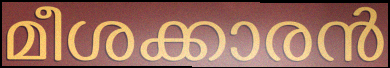
മീശക്കാരൻ